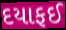
દયાફઈ